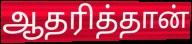
ஆதரித்தான்